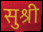
सुश्री